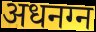
अधनग्न